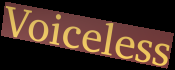
Voiceless